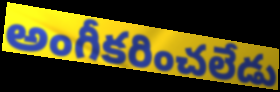
అంగీకరించలేడు